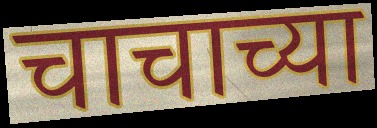
चाचाच्या